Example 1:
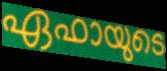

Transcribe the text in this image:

ഏഫായുടെ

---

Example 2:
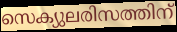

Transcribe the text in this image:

സെക്യുലരിസത്തിന്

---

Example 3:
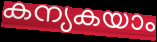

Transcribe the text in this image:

കന്യകയാം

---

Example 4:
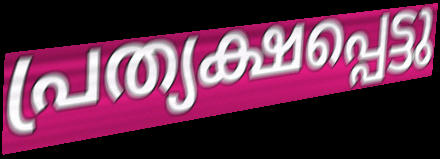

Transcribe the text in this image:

പ്രത്യക്ഷപ്പെട്ടു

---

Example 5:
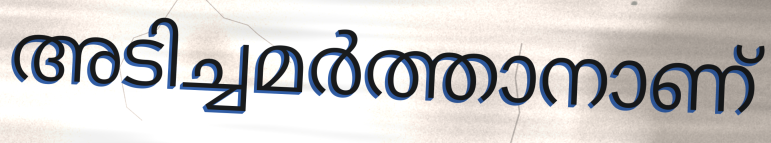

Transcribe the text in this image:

അടിച്ചമർത്താനാണ്